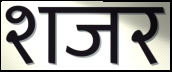
शजर